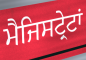
ਮੈਜਿਸਟ੍ਰੇਟਾਂ